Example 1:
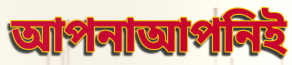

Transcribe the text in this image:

আপনাআপনিই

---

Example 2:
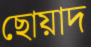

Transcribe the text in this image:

ছোয়াদ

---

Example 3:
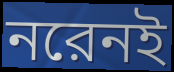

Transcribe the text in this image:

নরেনই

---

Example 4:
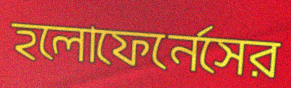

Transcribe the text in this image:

হলোফের্নেসের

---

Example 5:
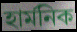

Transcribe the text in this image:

হার্মনিক